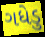
ગધેડુ